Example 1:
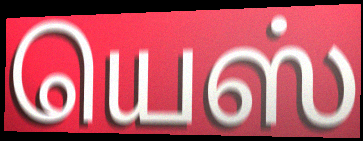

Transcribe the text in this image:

யெஸ்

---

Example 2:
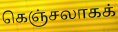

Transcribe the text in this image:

கெஞ்சலாகக்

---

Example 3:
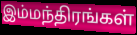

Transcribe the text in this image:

இம்மந்திரங்கள்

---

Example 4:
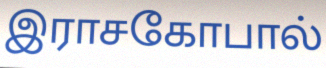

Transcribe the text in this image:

இராசகோபால்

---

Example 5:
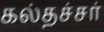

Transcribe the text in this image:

கல்தச்சர்